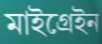
মাইগ্ৰেইন